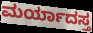
ಮರ್ಯಾದಸ್ತ